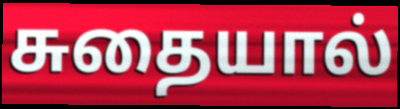
சுதையால்